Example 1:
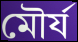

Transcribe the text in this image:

মৌর্য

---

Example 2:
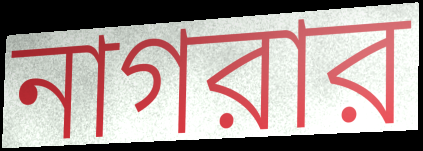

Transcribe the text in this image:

নাগরার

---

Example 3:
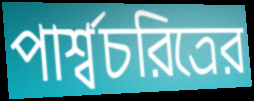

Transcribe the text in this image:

পার্শ্বচরিত্রের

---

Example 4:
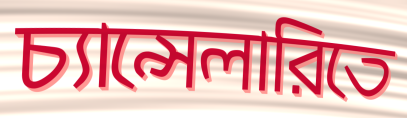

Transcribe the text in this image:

চ্যান্সেলারিতে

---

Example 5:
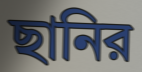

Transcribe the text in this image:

ছানির